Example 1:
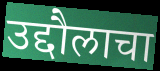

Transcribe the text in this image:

उद्दौलाचा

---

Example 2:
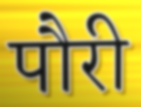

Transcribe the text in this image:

पौरी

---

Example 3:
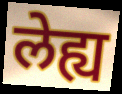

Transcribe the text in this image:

लेह्य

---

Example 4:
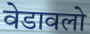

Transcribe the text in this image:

वेडावलो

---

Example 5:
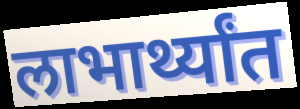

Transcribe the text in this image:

लाभार्थ्यांत